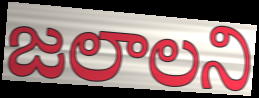
జలాలని